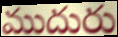
ముదురు